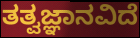
ತತ್ವಜ್ಞಾನವಿದೆ